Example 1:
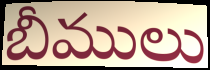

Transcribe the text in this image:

బీములు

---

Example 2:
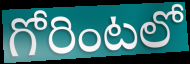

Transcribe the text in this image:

గోరింటలో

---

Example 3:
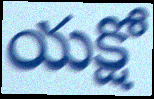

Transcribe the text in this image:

యక్షో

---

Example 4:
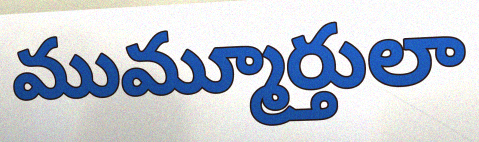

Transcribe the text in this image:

ముమ్మూర్తులా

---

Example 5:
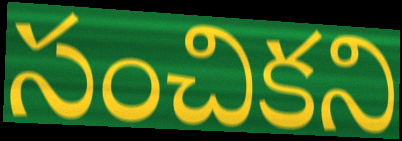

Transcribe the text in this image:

సంచికని